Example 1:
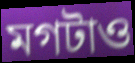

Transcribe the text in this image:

মগটাও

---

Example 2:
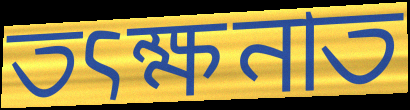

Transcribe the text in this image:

তৎক্ষনাত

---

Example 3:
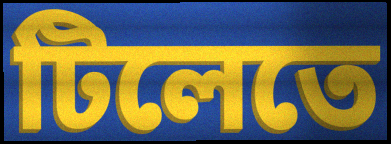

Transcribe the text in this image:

টিলেতে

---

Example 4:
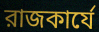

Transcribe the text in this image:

রাজকার্যে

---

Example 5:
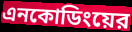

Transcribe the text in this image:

এনকোডিংয়ের